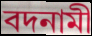
বদনামী